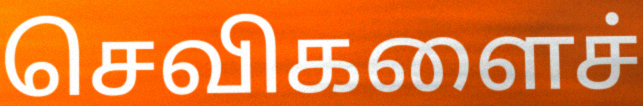
செவிகளைச்